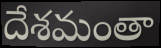
దేశమంతా